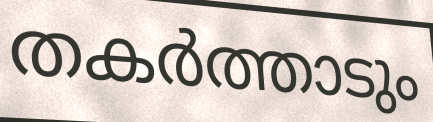
തകർത്താടും